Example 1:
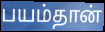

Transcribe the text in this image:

பயம்தான்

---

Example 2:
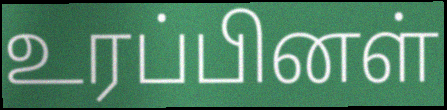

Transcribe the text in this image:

உரப்பினள்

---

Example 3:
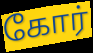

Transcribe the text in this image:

கோர்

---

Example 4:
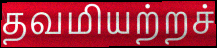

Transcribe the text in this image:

தவமியற்றச்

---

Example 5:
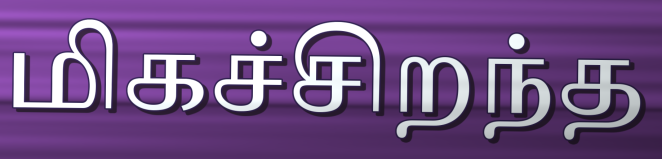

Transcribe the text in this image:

மிகச்சிறந்த